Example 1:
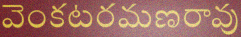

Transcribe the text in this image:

వెంకటరమణరావు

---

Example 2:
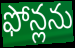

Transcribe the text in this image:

ఫోన్లను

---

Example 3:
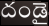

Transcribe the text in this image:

దండై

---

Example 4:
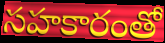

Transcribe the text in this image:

సహకారంతో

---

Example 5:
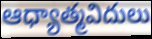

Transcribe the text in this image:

ఆధ్యాత్మవిదులు